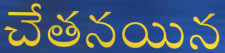
చేతనయిన